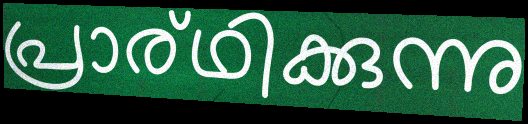
പ്രാര്ഥിക്കുന്നു